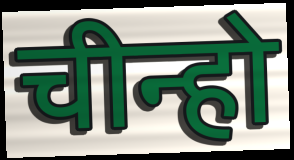
चीन्हो